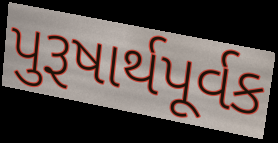
પુરૂષાર્થપૂર્વક